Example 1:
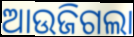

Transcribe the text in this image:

ଆଉଜିଗଲା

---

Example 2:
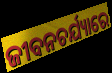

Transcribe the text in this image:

ଜୀବନଚର୍ଯ୍ୟାରେ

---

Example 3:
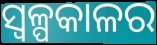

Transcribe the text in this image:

ସ୍ୱଳ୍ପକାଳର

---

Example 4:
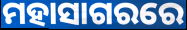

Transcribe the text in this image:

ମହାସାଗରରେ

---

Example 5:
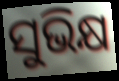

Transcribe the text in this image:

ସୁଭିକ୍ଷ